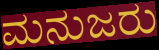
ಮನುಜರು